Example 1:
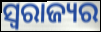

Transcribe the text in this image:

ସ୍ୱରାଜ୍ୟର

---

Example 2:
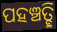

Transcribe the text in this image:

ପହଞ୍ଚତ୍ଛି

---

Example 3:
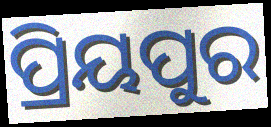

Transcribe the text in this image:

ପ୍ରିୟପୁର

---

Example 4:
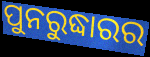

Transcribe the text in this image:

ପୁନରୁଦ୍ଧାରର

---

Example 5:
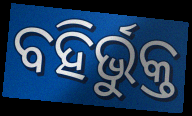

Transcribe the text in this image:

ବହିର୍ଭୁକ୍ତ